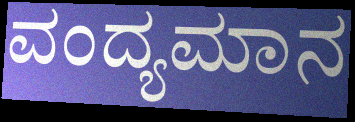
ವಂದ್ಯಮಾನ